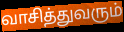
வாசித்துவரும்